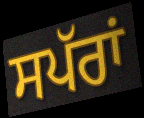
ਸਪੱਰਾਂ